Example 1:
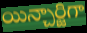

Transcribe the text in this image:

యిన్చార్జిగా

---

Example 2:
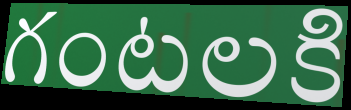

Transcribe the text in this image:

గంటలకి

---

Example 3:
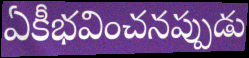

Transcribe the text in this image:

ఏకీభవించనప్పుడు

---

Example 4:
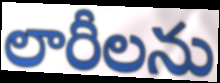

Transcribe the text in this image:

లారీలను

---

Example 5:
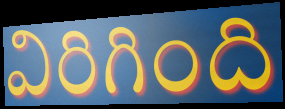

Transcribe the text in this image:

విరిగింది